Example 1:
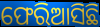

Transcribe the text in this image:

ଫେରିଆସିଛି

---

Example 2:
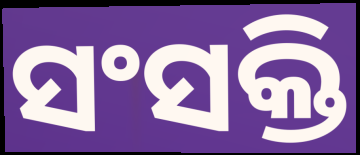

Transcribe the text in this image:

ସଂସକ୍ତି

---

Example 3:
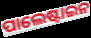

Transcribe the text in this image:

ପାଲେଷ୍ଟାଇନ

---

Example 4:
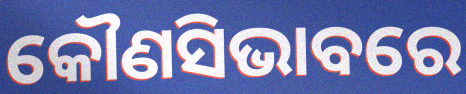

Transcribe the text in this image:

କୌଣସିଭାବରେ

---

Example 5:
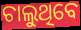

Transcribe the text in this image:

ଚାଲୁଥିବେ